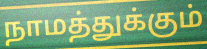
நாமத்துக்கும்